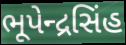
ભૂપેન્દ્રસિંહ